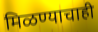
मिळण्याचाही